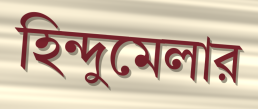
হিন্দুমেলার